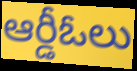
ఆర్డీఓలు